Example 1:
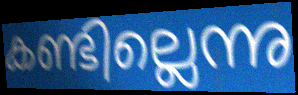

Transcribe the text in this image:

കണ്ടില്ലെന്നു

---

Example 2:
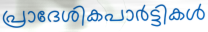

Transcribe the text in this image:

പ്രാദേശികപാർട്ടികൾ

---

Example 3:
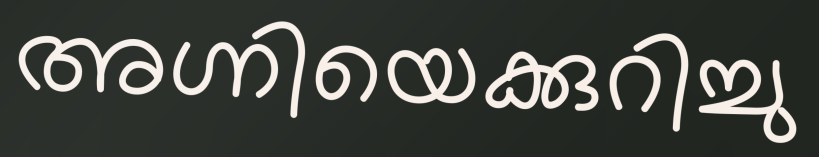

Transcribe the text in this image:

അഗ്നിയെക്കുറിച്ചു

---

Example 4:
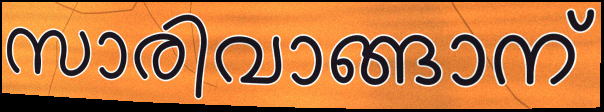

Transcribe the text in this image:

സാരിവാങ്ങാന്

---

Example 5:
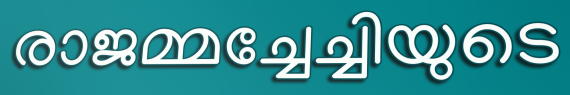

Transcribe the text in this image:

രാജമ്മച്ചേച്ചിയുടെ